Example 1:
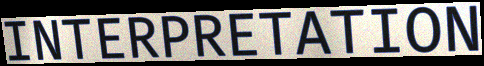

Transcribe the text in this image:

INTERPRETATION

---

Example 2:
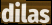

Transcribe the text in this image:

dilas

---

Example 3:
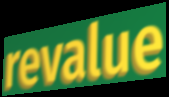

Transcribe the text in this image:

revalue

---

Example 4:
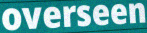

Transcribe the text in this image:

overseen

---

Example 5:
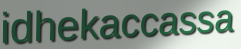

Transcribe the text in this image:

idhekaccassa